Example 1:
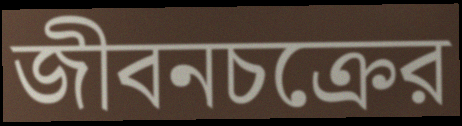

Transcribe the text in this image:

জীবনচক্রের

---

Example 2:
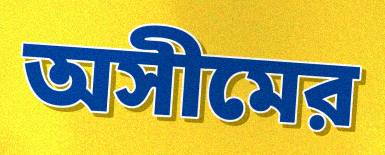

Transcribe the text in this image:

অসীমের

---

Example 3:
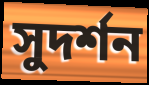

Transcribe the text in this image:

সুদর্শন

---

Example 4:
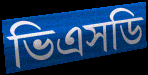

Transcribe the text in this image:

ভিএসডি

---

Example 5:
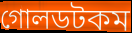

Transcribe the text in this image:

গোলডটকম